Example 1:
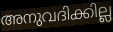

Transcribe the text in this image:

അനുവദിക്കില്ല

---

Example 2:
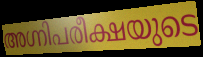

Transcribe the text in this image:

അഗ്നിപരീക്ഷയുടെ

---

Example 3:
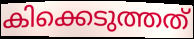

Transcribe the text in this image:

കിക്കെടുത്തത്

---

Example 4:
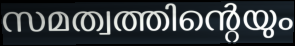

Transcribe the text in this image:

സമത്വത്തിന്റെയും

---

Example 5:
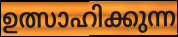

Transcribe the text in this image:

ഉത്സാഹിക്കുന്ന